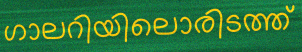
ഗാലറിയിലൊരിടത്ത്